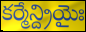
కర్మేన్ద్రియైః